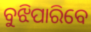
ବୁଝିପାରିବେ